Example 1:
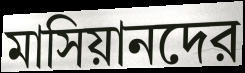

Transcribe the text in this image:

মাসিয়ানদের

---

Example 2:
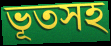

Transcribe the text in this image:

ভূতসহ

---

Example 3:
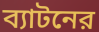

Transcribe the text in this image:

ব্যাটনের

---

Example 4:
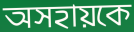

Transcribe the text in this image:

অসহায়কে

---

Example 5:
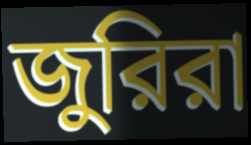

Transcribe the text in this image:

জুরিরা